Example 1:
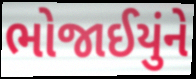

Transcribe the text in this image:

ભોજાઈયુંને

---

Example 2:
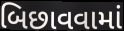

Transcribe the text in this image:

બિછાવવામાં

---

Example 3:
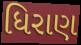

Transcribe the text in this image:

ધિરાણ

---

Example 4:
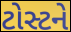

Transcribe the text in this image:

ટોસ્ટને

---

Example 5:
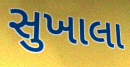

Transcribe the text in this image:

સુખાલા